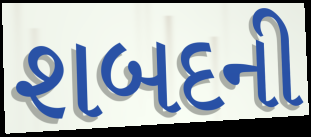
શબદની